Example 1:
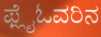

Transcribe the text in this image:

ಫ್ಲೈಓವರಿನ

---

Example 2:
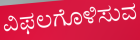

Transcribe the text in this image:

ವಿಫಲಗೊಳಿಸುವ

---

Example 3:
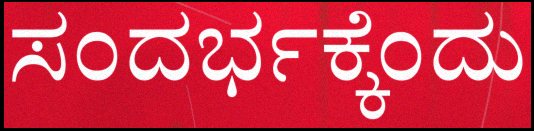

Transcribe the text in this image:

ಸಂದರ್ಭಕ್ಕೆಂದು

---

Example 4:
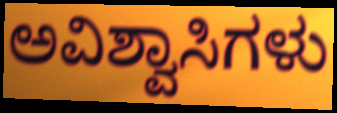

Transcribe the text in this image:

ಅವಿಶ್ವಾಸಿಗಳು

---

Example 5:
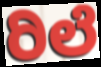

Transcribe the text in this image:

ರಿಲೆ